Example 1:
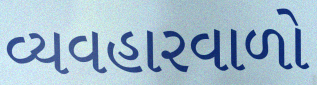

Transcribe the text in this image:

વ્યવહારવાળો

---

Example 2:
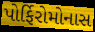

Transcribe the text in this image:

પોર્ફિરોમોનાસ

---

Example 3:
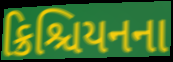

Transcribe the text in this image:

ક્રિશ્ચિયનના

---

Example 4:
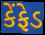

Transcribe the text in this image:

કેંફેડ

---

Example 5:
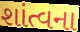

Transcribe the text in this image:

શાંત્વના